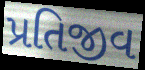
પ્રતિજીવ